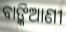
ବାଙ୍କିଆଣୀ